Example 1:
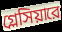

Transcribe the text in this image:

গ্লেসিয়ারে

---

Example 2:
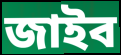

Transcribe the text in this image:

জাইব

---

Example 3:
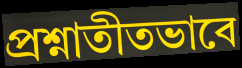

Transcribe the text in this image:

প্রশ্নাতীতভাবে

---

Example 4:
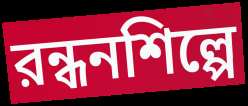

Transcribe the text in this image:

রন্ধনশিল্পে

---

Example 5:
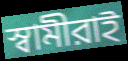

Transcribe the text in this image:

স্বামীরাই